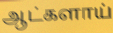
ஆட்களாய்